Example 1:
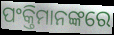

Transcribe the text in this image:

ପଂକ୍ତିମାନଙ୍କରେ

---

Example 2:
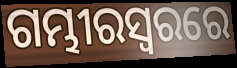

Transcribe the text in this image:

ଗମ୍ଭୀରସ୍ୱରରେ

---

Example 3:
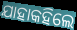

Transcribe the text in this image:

ଯାହାକହିଲେ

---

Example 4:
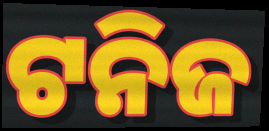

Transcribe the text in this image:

ଟନିଜ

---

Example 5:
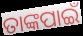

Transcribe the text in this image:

ତାଙ୍କପାଇଁ